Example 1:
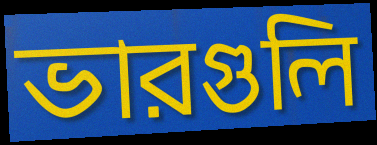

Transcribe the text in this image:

ভারগুলি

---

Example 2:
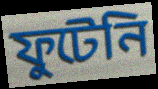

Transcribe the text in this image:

ফুটেনি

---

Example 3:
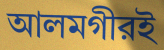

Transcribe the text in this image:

আলমগীরই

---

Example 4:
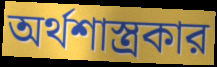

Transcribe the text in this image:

অর্থশাস্ত্রকার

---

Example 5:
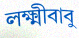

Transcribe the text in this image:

লক্ষ্মীবাবু